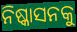
ନିଷ୍କାସନକୁ